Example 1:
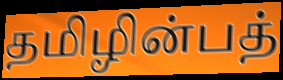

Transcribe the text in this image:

தமிழின்பத்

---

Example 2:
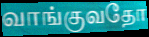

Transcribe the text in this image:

வாங்குவதோ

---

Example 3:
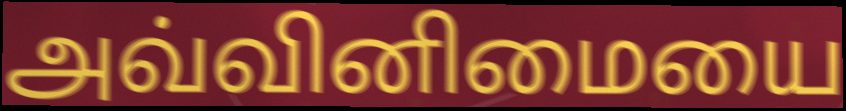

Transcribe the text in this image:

அவ்வினிமையை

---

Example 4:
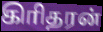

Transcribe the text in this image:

கிரிதரன்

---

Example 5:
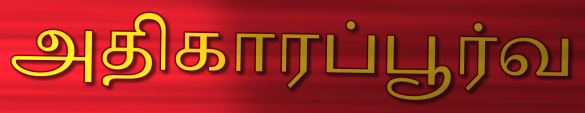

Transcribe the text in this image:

அதிகாரப்பூர்வ